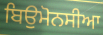
ਬਿਉਮੋਨਸੀਆ